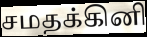
சமதக்கினி